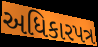
અધિકારપત્ર